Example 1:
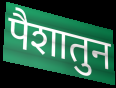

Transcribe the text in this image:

पैशातुन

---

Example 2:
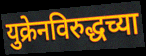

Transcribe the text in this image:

युक्रेनविरुद्धच्या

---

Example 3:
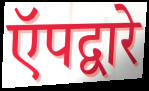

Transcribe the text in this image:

ऍपद्वारे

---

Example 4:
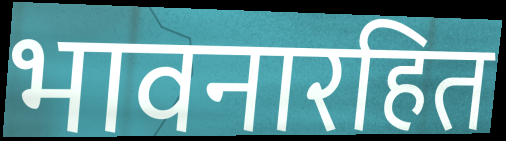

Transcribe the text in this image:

भावनारहित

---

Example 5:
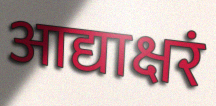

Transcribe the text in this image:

आद्याक्षरं